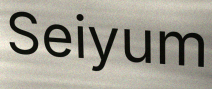
Seiyum